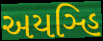
અયઞ્હિ